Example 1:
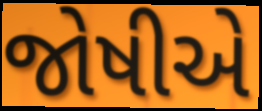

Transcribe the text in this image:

જોષીએ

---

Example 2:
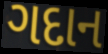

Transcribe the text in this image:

ગદાન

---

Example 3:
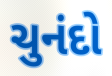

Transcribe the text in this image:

ચુનંદો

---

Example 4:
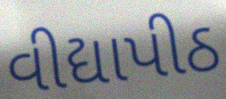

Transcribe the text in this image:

વીદ્યાપીઠ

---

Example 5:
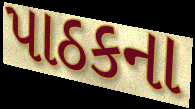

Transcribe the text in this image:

પાઠકના